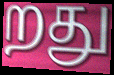
றது